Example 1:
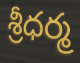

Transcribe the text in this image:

శ్రీధర్మ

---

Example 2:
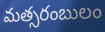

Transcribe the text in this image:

మత్సరంబులం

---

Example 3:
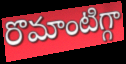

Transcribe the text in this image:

రొమాంటిగ్గా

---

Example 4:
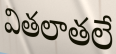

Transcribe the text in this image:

వితలాతలే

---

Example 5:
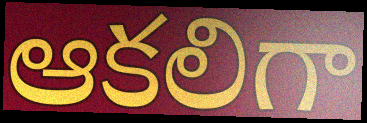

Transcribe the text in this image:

ఆకలిగా